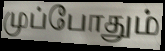
முப்போதும்